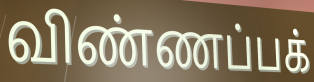
விண்ணப்பக்